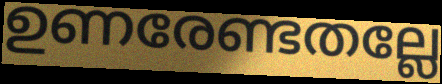
ഉണരേണ്ടതല്ലേ